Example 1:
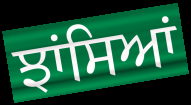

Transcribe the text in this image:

ਝਾਂਸਿਆਂ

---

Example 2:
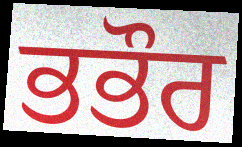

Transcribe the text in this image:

ਭਭੌਰ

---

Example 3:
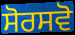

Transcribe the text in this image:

ਸੋਰਸਵੋ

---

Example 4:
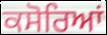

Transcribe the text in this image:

ਕਸੋਰਿਆਂ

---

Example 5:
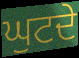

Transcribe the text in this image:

ਘੁਟਦੇ